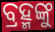
ବ୍ରହ୍ମଙ୍କୁ